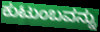
ಕುಟುಂಬವನ್ನು